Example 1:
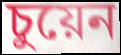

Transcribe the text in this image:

চুয়েন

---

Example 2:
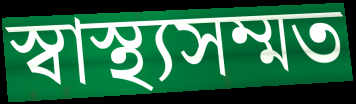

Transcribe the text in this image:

স্বাস্থ্যসম্মত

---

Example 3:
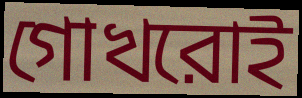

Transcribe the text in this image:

গোখরোই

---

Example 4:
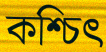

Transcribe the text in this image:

কশ্চিৎ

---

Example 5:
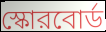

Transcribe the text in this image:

স্কোরবোর্ড